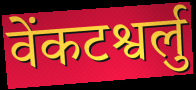
वेंकटश्वर्लु